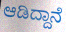
ಆಡಿದ್ದಾನೆ